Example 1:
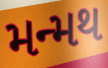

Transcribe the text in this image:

મન્મથ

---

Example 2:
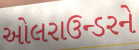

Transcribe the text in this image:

ઓલરાઉન્ડરને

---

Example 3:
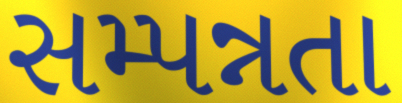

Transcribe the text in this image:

સમ્પન્નતા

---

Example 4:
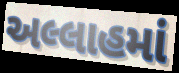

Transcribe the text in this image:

અલ્લાહમાં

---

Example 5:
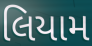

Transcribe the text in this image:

લિયામ